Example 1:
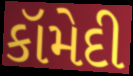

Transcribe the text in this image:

કૉમેદી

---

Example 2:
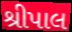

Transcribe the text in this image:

શ્રીપાલ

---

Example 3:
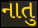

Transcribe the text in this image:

નાતુ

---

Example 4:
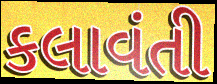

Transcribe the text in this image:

કલાવંતી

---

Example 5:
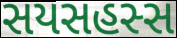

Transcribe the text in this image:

સયસહસ્સ